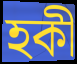
হকী